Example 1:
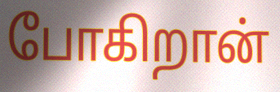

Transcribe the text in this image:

போகிறான்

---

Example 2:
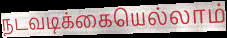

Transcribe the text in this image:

நடவடிக்கையெல்லாம்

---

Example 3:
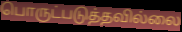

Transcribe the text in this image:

பொருட்படுத்தவில்லை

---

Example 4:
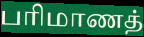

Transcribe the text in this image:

பரிமாணத்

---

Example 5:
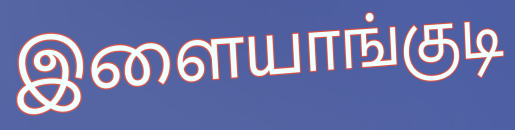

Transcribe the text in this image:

இளையாங்குடி